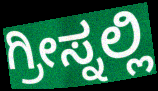
ಗ್ರೀಸ್ನಲ್ಲಿ